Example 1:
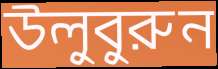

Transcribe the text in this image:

উলুবুরুন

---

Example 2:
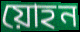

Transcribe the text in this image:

য়োহন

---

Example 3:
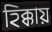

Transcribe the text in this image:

হিক্কায়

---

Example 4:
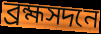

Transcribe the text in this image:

ব্রহ্মসদনে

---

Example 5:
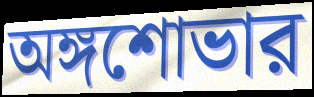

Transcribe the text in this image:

অঙ্গশোভার